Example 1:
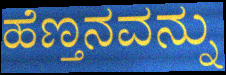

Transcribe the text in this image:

ಹೆಣ್ತನವನ್ನು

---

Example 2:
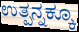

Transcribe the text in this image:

ಉತ್ಪನ್ನಕ್ಕೂ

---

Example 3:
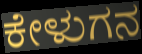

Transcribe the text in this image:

ಕೇಳುಗನ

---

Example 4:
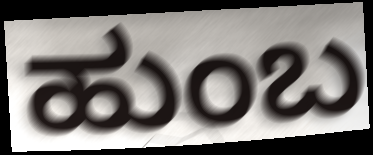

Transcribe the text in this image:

ಹುಂಬ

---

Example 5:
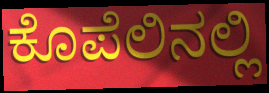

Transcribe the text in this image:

ಕೊಪೆಲಿನಲ್ಲಿ